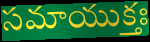
సమాయుక్తః